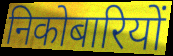
निकोबारियों